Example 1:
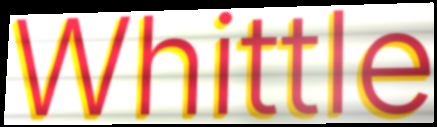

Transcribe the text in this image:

Whittle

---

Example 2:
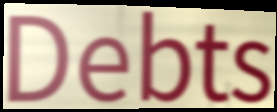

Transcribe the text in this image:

Debts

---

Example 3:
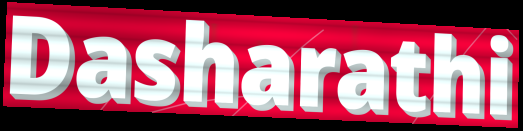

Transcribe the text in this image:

Dasharathi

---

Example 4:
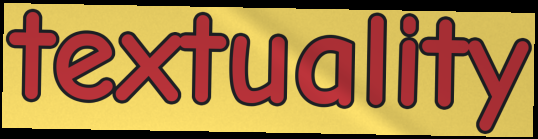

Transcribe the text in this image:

textuality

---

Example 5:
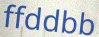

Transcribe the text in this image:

ffddbb